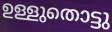
ഉള്ളുതൊട്ടു